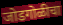
जोडगोळीचा